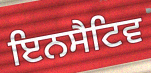
ਇਨਸੈਟਿਵ